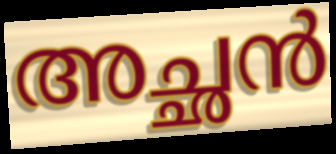
അച്ഛൻ